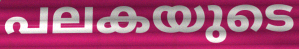
പലകയുടെ